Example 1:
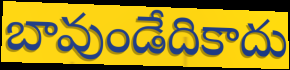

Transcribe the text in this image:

బావుండేదికాదు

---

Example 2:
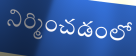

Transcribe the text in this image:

నిర్మించడంలో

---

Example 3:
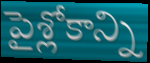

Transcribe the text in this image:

పైశ్లోకాన్ని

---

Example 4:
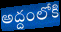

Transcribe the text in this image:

అద్దంలోకి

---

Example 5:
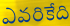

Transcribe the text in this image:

ఎవరికేది